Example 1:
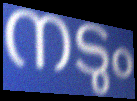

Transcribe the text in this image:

നടും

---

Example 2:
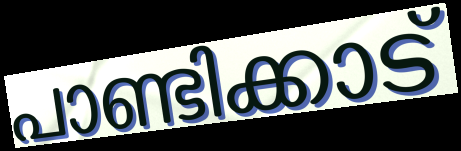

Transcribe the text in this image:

പാണ്ടിക്കാട്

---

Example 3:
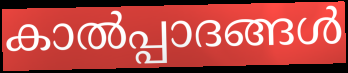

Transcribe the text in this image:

കാൽപ്പാദങ്ങൾ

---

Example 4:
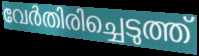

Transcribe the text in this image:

വേർതിരിച്ചെടുത്ത്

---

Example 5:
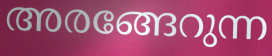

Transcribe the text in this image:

അരങ്ങേറുന്ന